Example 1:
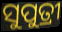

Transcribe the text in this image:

ସୁପୁତ୍ରୀ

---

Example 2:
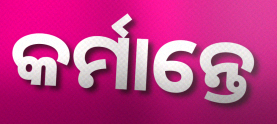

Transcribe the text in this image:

କର୍ମାନ୍ତେ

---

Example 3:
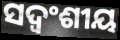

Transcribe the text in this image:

ସଦ୍ବଂଶୀୟ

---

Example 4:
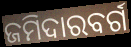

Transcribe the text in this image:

ଜମିଦାରବର୍ଗ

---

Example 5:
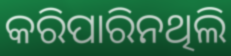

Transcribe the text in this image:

କରିପାରିନଥିଲି